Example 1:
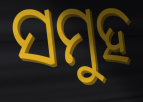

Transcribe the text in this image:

ସମୁହ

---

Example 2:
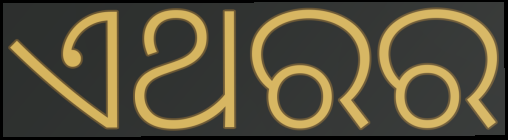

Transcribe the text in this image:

ଏଥରର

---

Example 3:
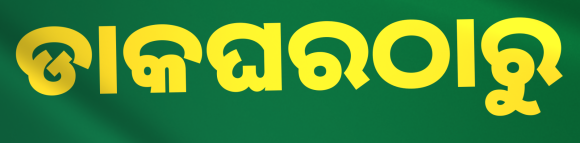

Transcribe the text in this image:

ଡାକଘରଠାରୁ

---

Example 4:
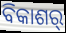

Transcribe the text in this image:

ବିକାଶର୍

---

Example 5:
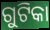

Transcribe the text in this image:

ଗୁଟିକା